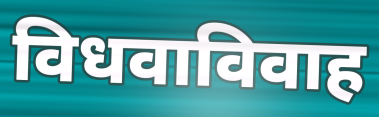
विधवाविवाह